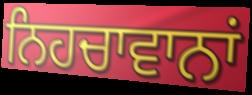
ਨਿਹਚਾਵਾਨਾਂ